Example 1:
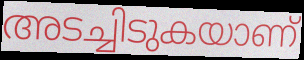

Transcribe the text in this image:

അടച്ചിടുകയാണ്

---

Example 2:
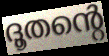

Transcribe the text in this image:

ദൂതന്റെ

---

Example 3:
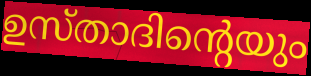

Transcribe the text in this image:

ഉസ്താദിന്റെയും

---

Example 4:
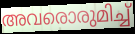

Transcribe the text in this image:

അവരൊരുമിച്ച്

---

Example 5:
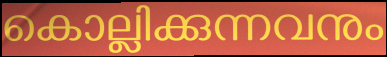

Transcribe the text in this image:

കൊല്ലിക്കുന്നവനും